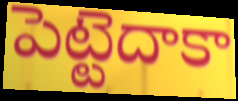
పెట్టెదాకా